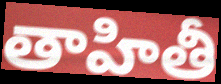
తాహితీ